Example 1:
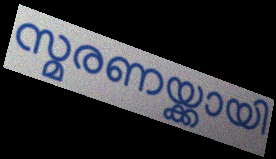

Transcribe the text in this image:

സ്മരണയ്ക്കായി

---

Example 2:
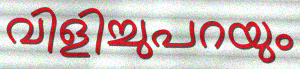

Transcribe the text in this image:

വിളിച്ചുപറയും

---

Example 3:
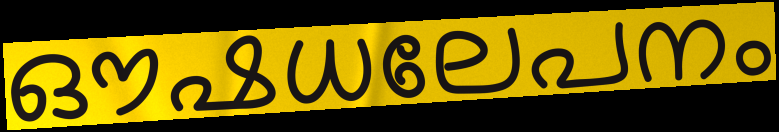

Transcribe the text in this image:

ഔഷധലേപനം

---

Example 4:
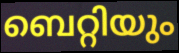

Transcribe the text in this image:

ബെറ്റിയും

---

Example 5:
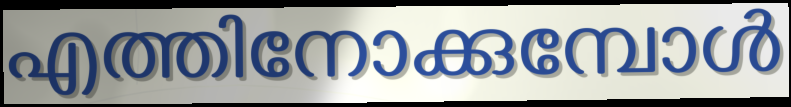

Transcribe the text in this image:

എത്തിനോക്കുമ്പോൾ